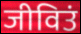
जीविउं